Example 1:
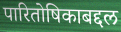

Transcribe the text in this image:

पारितोषिकाबद्दल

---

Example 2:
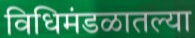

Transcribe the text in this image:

विधिमंडळातल्या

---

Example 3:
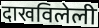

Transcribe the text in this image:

दाखविलेली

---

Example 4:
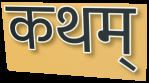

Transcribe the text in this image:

कथम्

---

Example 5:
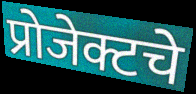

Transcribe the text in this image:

प्रोजेक्टचे